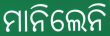
ମାନିଲେନି